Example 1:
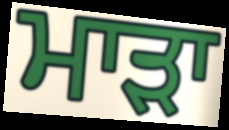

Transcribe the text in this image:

ਮਾਡ਼ਾ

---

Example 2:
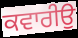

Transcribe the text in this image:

ਕਵਾਰੀਉ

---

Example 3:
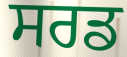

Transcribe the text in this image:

ਸਰਡ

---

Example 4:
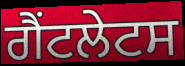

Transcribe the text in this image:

ਗੈਂਟਲੇਟਸ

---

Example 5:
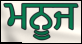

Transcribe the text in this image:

ਮਨੂਜ